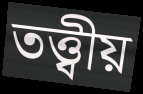
তত্ত্বীয়